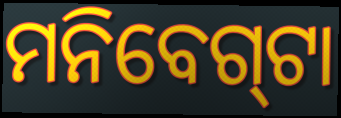
ମନିବେଗ୍‍ଟା